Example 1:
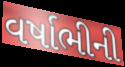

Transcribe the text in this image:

વર્ષાભીની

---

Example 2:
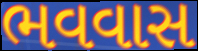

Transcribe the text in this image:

ભવવાસ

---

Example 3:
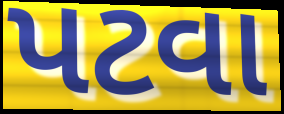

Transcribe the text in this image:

પટવા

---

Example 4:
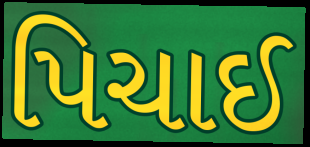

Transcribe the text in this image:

પિચાઈ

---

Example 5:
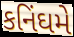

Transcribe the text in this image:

કનિંઘમે